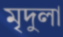
মৃদুলা